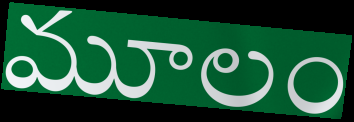
మూలం